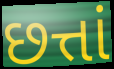
છત્તાં